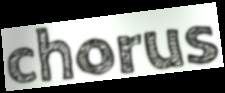
chorus